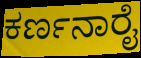
ಕರ್ಣನಾರೈ